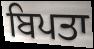
ਬਿਪਤਾ